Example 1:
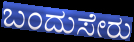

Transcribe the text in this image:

ಬಂದುಸೇರು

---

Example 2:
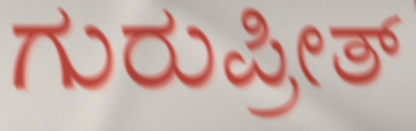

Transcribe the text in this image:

ಗುರುಪ್ರೀತ್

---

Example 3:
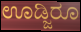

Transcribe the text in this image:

ಊಡ್ಜಿರೂ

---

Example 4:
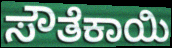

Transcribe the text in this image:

ಸೌತೆಕಾಯಿ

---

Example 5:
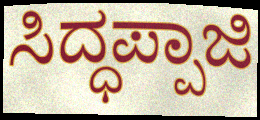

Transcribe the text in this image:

ಸಿದ್ಧಪ್ಪಾಜಿ